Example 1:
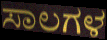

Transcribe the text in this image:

ಸಾಲಗಳ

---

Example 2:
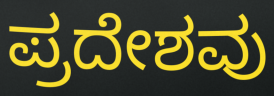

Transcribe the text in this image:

ಪ್ರದೇಶವು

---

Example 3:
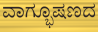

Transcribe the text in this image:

ವಾಗ್ಭೂಷಣದ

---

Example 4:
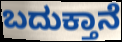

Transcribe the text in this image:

ಬದುಕ್ತಾನೆ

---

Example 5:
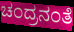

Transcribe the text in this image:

ಚಂದ್ರನಂತೆ